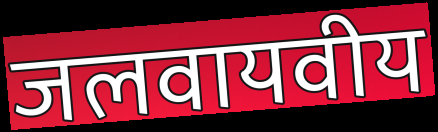
जलवायवीय